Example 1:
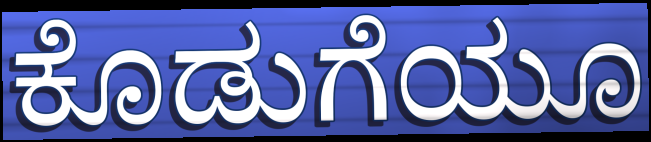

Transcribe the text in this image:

ಕೊಡುಗೆಯೂ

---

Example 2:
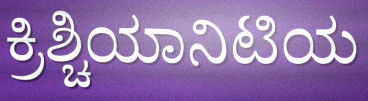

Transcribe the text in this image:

ಕ್ರಿಶ್ಚಿಯಾನಿಟಿಯ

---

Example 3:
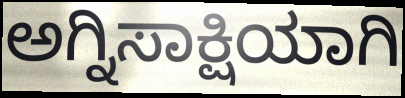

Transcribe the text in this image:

ಅಗ್ನಿಸಾಕ್ಷಿಯಾಗಿ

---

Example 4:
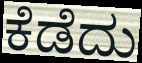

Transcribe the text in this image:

ಕೆಡೆದು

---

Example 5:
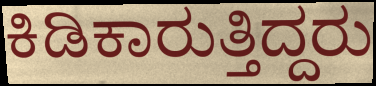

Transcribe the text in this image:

ಕಿಡಿಕಾರುತ್ತಿದ್ದರು